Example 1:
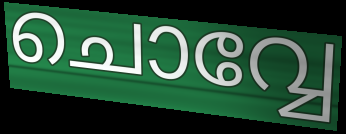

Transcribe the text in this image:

ചൊവ്വേ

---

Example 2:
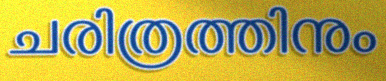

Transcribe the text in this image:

ചരിത്രത്തിനും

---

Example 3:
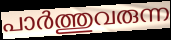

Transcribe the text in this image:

പാർത്തുവരുന്ന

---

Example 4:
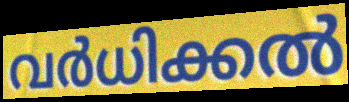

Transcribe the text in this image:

വർധിക്കൽ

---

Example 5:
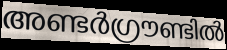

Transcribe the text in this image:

അണ്ടർഗ്രൗണ്ടിൽ